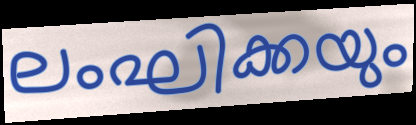
ലംഘിക്കയും